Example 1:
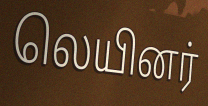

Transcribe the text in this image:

லெயினர்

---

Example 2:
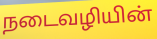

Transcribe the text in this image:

நடைவழியின்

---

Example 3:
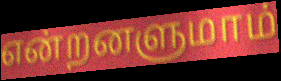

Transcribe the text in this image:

என்றனளுமாம்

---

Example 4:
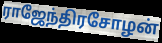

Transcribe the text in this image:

ராஜேந்திரசோழன்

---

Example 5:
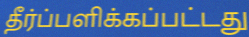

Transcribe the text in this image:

தீர்ப்பளிக்கப்பட்டது